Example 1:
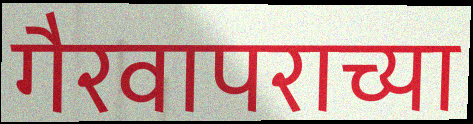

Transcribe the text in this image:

गैरवापराच्या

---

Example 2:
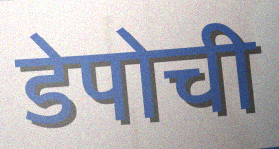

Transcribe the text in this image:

डेपोची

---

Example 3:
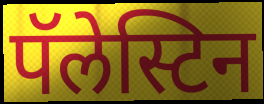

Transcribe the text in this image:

पॅलेस्टिन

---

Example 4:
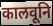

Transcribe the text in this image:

कालवूनि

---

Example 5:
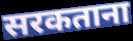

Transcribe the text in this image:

सरकताना